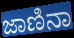
ಜಾಣಿನಾ